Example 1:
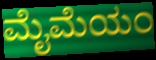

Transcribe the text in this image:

ಮೈಮೆಯಂ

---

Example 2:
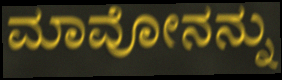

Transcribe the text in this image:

ಮಾವೋನನ್ನು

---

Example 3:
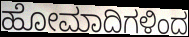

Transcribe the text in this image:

ಹೋಮಾದಿಗಳಿಂದ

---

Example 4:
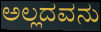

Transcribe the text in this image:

ಅಲ್ಲದವನು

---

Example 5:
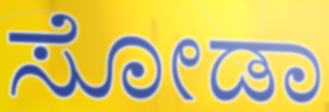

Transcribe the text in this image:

ಸೋಡಾ